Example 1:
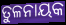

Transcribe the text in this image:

ତୁଳନାୟକ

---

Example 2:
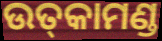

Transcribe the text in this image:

ଉତ୍‌କାମଣ୍ଡ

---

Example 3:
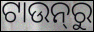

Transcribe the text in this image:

ଟାଉନ୍‌ରୁ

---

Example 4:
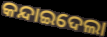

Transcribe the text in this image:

କନ୍ଦାଇଦେଲା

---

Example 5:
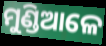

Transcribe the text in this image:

ମୁଣ୍ଡିଆଳେ